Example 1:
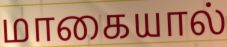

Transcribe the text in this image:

மாகையால்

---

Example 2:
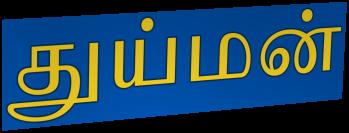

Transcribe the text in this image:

துய்மன்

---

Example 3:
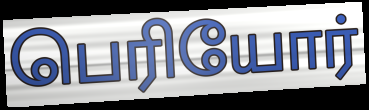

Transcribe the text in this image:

பெரியோர்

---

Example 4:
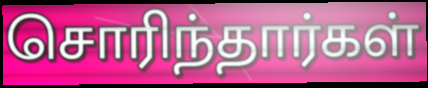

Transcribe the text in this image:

சொரிந்தார்கள்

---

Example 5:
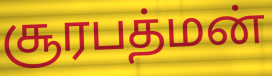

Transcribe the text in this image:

சூரபத்மன்